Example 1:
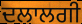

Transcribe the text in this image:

ਦਲਾਲਗੀ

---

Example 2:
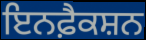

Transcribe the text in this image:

ਇਨਫ਼ੈਕਸ਼ਨ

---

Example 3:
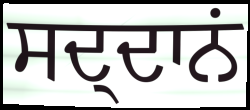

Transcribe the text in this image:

ਸਦ੍ਦਾਨਂ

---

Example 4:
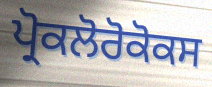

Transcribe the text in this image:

ਪ੍ਰੋਕਲੋਰੋਕੋਕਸ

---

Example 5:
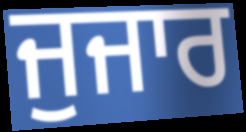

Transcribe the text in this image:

ਜੁਜਾਰ